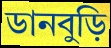
ডানবুড়ি